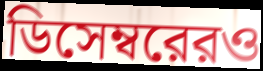
ডিসেম্বরেরও